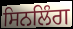
ਸਿਨਲਿੰਗ